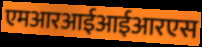
एमआरआईआईआरएस